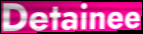
Detainee